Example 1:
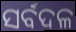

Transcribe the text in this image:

ସର୍ବଦଳ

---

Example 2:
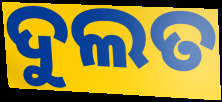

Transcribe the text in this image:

ଦୁଲତ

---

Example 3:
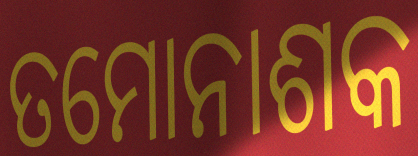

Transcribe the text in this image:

ତମୋନାଶକ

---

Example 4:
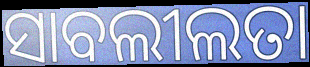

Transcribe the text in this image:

ସାବଲୀଲତା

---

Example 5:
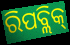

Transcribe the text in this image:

ରିପବ୍ଲିକ୍